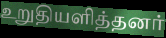
உறுதியளித்தனர்